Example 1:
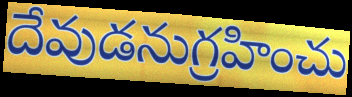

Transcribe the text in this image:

దేవుడనుగ్రహించు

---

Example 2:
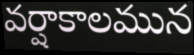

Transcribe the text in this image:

వర్షాకాలమున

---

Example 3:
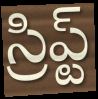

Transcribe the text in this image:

స్రిప్ట్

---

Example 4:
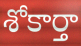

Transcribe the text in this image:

శోకార్తా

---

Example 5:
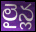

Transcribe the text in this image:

లైన్ల